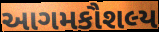
આગમકૌશલ્ય